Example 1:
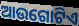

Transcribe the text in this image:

ଆଉଗୋଟିଏ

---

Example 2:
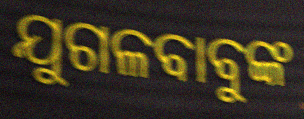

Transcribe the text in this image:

ଯୁଗଳବାବୁଙ୍କ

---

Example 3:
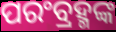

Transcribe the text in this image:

ପରଂବ୍ରହ୍ମଙ୍କ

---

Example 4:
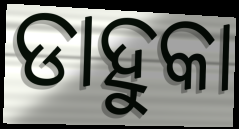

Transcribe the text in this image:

ଡାହୁକା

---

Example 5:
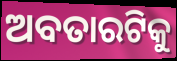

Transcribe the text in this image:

ଅବତାରଟିକୁ